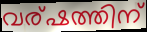
വര്ഷത്തിന്